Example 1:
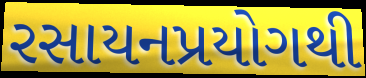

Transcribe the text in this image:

રસાયનપ્રયોગથી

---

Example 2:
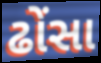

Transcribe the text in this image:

ઢોંસા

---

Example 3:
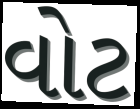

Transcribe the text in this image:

વોટ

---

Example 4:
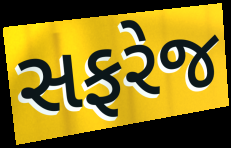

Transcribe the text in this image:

સફરેજ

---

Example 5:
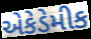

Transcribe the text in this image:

એકેડેમીક